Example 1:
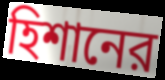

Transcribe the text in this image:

হিশানের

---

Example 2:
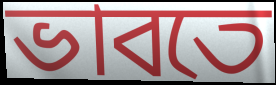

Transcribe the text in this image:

ভাবতে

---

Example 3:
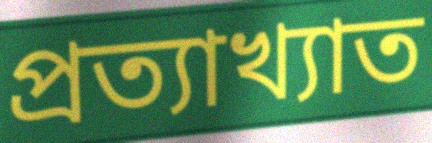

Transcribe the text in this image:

প্রত্যাখ্যাত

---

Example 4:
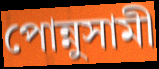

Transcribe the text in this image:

পোন্নুসামী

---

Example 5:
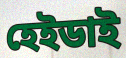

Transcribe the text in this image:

হেইডাই